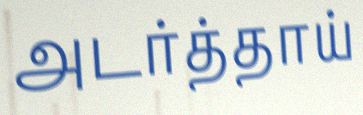
அடர்த்தாய்